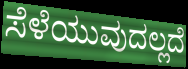
ಸೆಳೆಯುವುದಲ್ಲದೆ